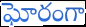
ఘోరంగా